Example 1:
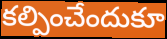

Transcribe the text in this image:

కల్పించేందుకూ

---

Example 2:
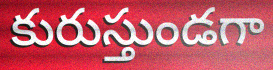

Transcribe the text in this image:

కురుస్తుండగా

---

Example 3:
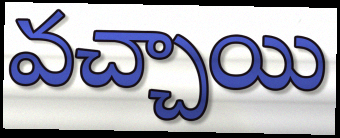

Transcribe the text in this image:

వచ్చాయి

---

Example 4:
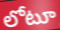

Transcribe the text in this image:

లోటూ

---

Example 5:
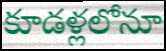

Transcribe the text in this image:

కూడళ్లలోనూ